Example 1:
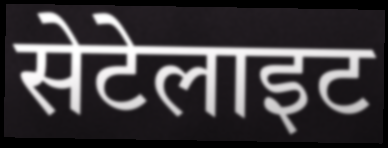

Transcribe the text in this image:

सेटेलाइट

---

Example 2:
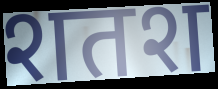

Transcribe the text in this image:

शतश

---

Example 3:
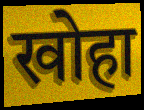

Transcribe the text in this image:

खोहा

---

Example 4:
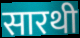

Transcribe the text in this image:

सारथी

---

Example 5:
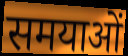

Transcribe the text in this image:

समयाओं